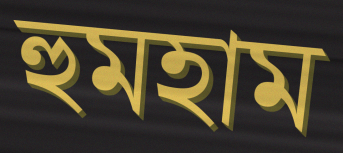
হুমহাম